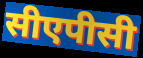
सीएपीसी